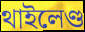
থাইলেণ্ড